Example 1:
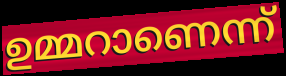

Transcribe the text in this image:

ഉമ്മറാണെന്ന്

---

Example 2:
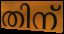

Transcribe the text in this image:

തിന്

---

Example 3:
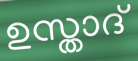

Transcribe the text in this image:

ഉസ്താദ്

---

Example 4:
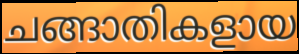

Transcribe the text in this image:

ചങ്ങാതികളായ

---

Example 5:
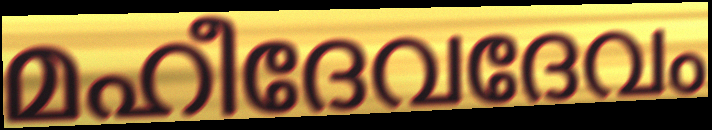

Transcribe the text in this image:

മഹീദേവദേവം